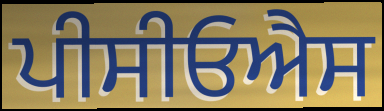
ਪੀਸੀਓਐਸ